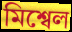
মিশ্বেল